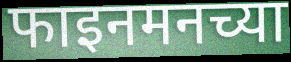
फाइनमनच्या